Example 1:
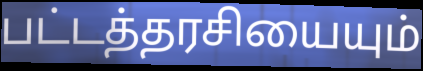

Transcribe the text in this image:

பட்டத்தரசியையும்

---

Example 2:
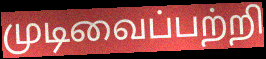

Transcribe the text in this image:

முடிவைப்பற்றி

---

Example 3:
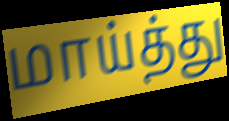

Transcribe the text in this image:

மாய்த்து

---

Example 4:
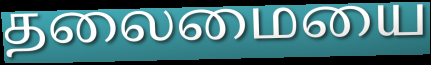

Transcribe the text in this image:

தலைமையை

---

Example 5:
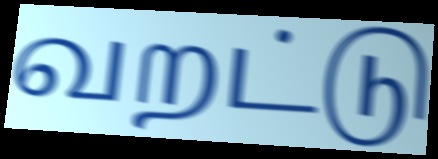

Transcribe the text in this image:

வறட்டு